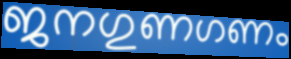
ജനഗുണഗണം